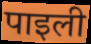
पाइली